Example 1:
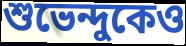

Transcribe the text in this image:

শুভেন্দুকেও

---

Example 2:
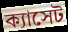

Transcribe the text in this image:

ক্যাসেট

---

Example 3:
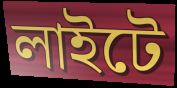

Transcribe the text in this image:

লাইটে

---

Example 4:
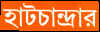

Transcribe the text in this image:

হাটচান্দ্রার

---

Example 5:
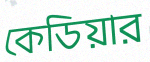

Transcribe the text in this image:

কেডিয়ার